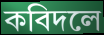
কবিদলে